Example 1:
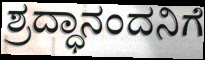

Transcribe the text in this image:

ಶ್ರದ್ಧಾನಂದನಿಗೆ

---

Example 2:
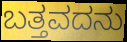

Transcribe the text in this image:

ಬತ್ತವದನು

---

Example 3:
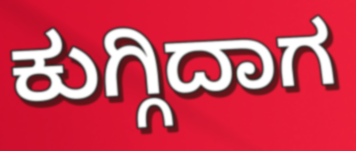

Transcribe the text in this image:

ಕುಗ್ಗಿದಾಗ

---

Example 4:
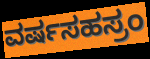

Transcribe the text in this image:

ವರ್ಷಸಹಸ್ರಂ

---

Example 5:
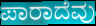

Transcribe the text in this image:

ಪಾರಾದೆವು